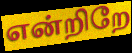
என்றிறே